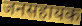
जनसहायक